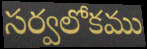
సర్వలోకము